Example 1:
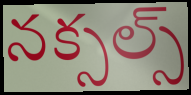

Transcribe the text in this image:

నక్సల్స్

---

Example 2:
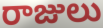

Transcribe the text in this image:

రాజులు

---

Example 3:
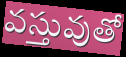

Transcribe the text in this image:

వస్తువుతో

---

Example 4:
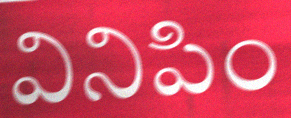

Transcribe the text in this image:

వినిపిం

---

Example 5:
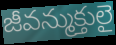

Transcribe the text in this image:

జీవన్ముక్తులై